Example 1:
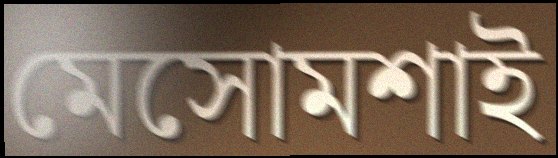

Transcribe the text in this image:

মেসোমশাই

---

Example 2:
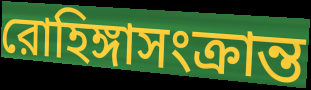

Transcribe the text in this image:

রোহিঙ্গাসংক্রান্ত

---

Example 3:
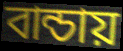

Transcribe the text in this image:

বান্ডায়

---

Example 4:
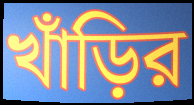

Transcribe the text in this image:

খাঁড়ির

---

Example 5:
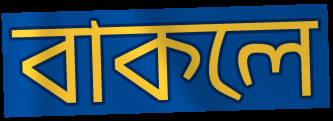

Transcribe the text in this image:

বাকলে